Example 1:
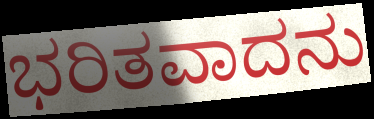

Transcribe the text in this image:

ಭರಿತವಾದನು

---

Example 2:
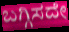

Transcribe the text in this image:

ಬಗ್ಗಿಸದೇ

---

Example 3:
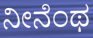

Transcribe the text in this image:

ನೀನೆಂಥ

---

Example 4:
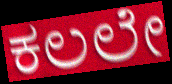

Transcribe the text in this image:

ಕಲಲೇ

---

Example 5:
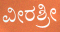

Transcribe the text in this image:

ವೀರಶ್ರೀ